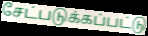
சேட்படுக்கப்பட்டு